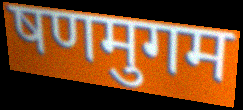
षणमुगम